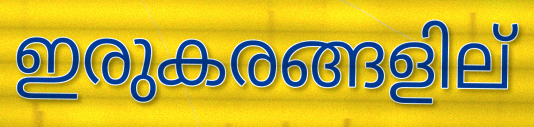
ഇരുകരങ്ങളില്